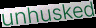
unhusked